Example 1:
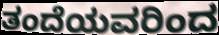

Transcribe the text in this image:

ತಂದೆಯವರಿಂದ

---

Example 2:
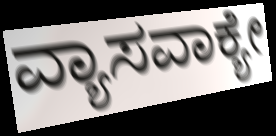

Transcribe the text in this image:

ವ್ಯಾಸವಾಕ್ಯೇ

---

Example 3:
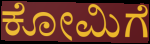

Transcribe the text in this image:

ಕೋಮಿಗೆ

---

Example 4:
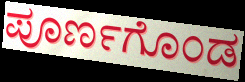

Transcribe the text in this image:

ಪೂರ್ಣಗೊಂಡ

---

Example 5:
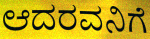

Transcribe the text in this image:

ಆದರವನಿಗೆ